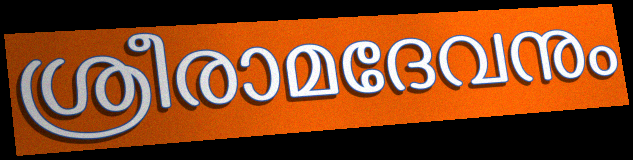
ശ്രീരാമദേവനും